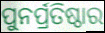
ପୁନର୍ପ୍ରତିଷ୍ଠାର